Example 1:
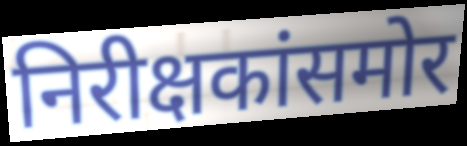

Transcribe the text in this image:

निरीक्षकांसमोर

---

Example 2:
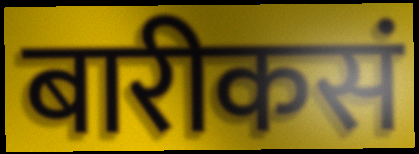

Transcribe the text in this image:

बारीकसं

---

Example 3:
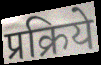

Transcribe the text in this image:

प्रक्रिये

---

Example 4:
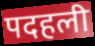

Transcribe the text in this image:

पदहली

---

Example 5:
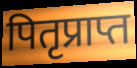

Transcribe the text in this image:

पितृप्राप्त